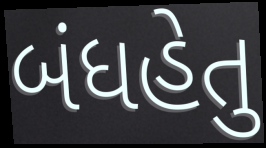
બંધહેતુ